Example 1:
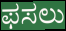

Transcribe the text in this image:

ಫಸಲು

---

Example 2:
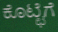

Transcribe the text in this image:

ಕೊಟ್ಟೆಗೆ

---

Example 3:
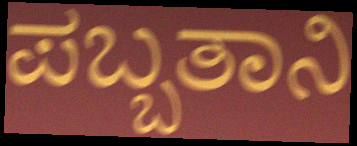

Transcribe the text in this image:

ಪಬ್ಬತಾನಿ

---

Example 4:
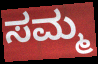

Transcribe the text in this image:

ಸಮ್ಮ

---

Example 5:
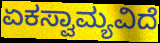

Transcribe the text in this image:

ಏಕಸ್ವಾಮ್ಯವಿದೆ